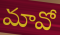
మావో